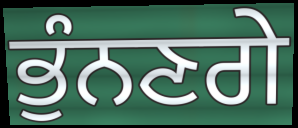
ਭੁੰਨਣਗੇ